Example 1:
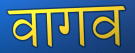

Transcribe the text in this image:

वागव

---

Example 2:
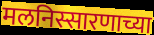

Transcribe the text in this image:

मलनिस्सारणाच्या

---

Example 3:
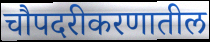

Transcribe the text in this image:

चौपदरीकरणातील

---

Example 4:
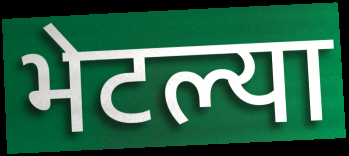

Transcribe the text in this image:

भेटल्या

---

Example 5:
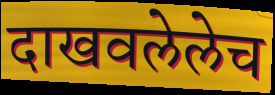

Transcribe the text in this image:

दाखवलेलेच